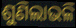
ଶୁଣିଲାଭଳି